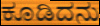
ಕೂಡಿದನು